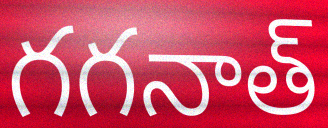
గగనాత్